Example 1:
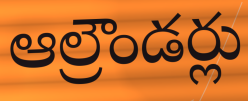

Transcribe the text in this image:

ఆల్రౌండర్లు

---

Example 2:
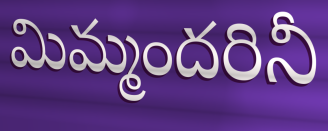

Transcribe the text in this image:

మిమ్మందరినీ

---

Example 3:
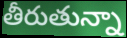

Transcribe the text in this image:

తీరుతున్నా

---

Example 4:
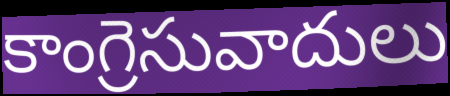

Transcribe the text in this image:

కాంగ్రెసువాదులు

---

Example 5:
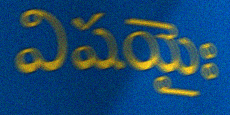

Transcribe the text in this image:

విషయైః